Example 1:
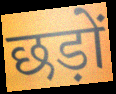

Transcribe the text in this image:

छड़ों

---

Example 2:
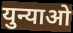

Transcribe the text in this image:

युन्याओ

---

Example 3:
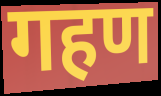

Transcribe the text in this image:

गहण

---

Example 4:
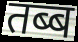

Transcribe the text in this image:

तब्ब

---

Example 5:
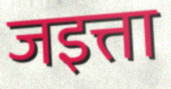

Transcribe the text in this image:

जइत्ता